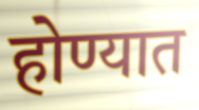
होण्यात